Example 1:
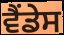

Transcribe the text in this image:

ਵੈਂਡੇਸ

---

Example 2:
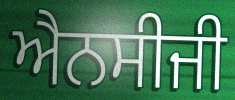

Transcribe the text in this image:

ਐਨਸੀਜੀ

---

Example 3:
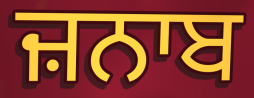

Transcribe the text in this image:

ਜ਼ਨਾਬ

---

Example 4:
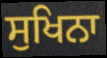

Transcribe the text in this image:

ਸੁਖਿਨਾ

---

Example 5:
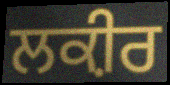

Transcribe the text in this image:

ਲਕ਼ੀਰ